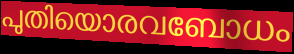
പുതിയൊരവബോധം